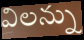
విలన్ను